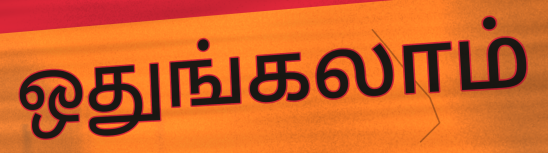
ஒதுங்கலாம்